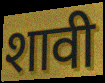
शावी